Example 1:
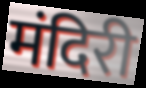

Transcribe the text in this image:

मंदिरी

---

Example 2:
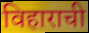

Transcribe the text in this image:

विहाराची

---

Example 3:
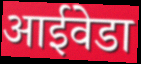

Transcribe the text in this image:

आईवेडा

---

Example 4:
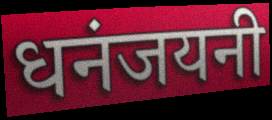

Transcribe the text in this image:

धनंजयनी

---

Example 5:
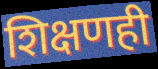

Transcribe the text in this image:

शिक्षणही